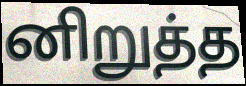
னிறுத்த